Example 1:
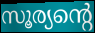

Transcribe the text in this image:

സൂര്യന്റെ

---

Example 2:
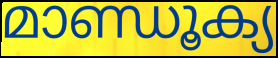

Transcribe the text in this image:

മാണ്ഡൂക്യ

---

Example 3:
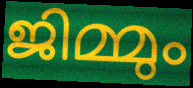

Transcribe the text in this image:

ജിമ്മും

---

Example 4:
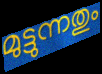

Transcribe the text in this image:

മുട്ടുന്നതും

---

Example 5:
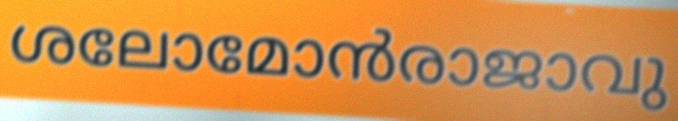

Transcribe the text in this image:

ശലോമോൻരാജാവു